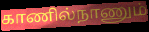
காணில்நாணும்